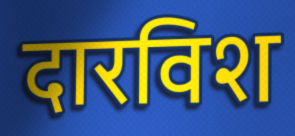
दारविश